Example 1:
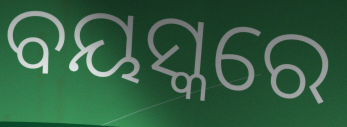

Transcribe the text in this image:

ବୟସ୍କରେ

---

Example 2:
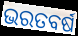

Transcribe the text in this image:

ଭରତବର୍ଷ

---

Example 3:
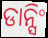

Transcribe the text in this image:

ଡାନ୍ସିଂ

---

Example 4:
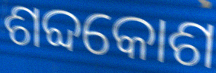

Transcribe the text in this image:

ଶବ୍ଦକୋଶ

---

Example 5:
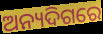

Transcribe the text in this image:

ଅନ୍ୟଦିଗରେ